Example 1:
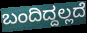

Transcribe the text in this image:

ಬಂದಿದ್ದಲ್ಲದೆ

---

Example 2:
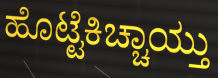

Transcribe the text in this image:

ಹೊಟ್ಟೆಕಿಚ್ಚಾಯ್ತು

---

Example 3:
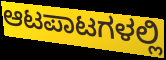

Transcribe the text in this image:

ಆಟಪಾಟಗಳಲ್ಲಿ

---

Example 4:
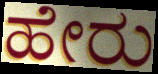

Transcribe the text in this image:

ಹೇರು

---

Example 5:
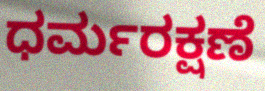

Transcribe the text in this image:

ಧರ್ಮರಕ್ಷಣೆ